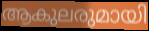
ആകുലരുമായി